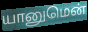
யானுமென்